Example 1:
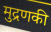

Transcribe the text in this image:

मुद्रणकी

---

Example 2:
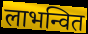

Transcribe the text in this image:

लाभन्वित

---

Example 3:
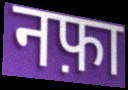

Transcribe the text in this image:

नफ़ा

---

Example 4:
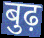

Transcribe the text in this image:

बुढ़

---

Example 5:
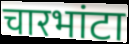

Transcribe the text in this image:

चारभांटा